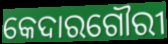
କେଦାରଗୌରୀ